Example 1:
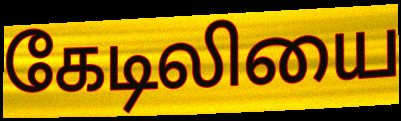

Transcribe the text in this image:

கேடிலியை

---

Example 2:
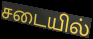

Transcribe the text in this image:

சடையில்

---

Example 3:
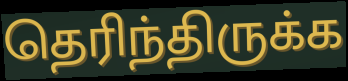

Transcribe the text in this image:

தெரிந்திருக்க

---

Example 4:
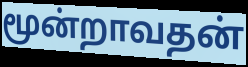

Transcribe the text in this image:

மூன்றாவதன்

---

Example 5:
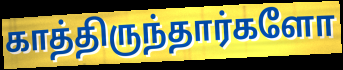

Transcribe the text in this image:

காத்திருந்தார்களோ